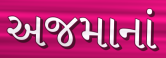
અજમાનાં